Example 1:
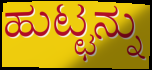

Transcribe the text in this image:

ಹುಟ್ಟನ್ನು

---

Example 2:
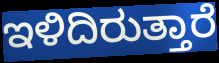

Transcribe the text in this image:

ಇಳಿದಿರುತ್ತಾರೆ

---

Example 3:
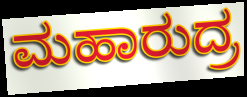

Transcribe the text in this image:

ಮಹಾರುದ್ರ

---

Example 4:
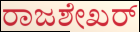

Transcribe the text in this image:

ರಾಜಶೇಖರ್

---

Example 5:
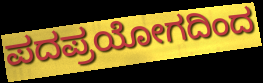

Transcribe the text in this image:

ಪದಪ್ರಯೋಗದಿಂದ